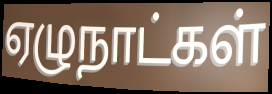
ஏழுநாட்கள்